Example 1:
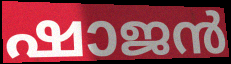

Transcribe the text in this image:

ഷാജൻ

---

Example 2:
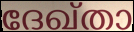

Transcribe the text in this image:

ദേഖ്താ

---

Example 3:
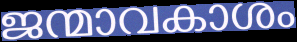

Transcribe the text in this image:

ജന്മാവകാശം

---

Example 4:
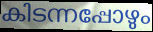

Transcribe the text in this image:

കിടന്നപ്പോഴും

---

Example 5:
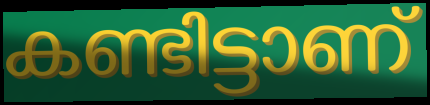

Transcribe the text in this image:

കണ്ടിട്ടാണ്